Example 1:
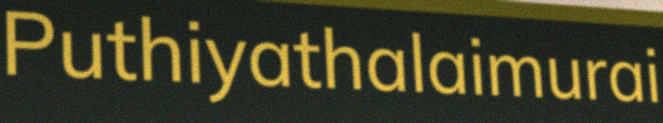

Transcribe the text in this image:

Puthiyathalaimurai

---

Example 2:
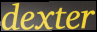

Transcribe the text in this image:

dexter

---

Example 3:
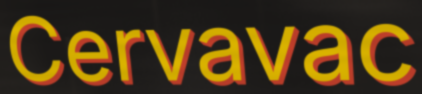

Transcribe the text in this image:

Cervavac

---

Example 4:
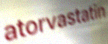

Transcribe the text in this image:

atorvastatin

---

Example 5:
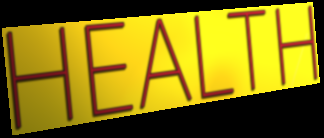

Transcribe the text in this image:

HEALTH